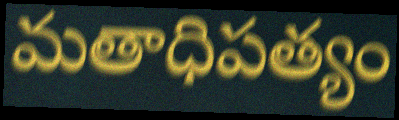
మతాధిపత్యం